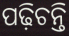
ପଢ଼ିଚନ୍ତି